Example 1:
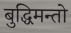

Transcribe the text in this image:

बुद्धिमन्तो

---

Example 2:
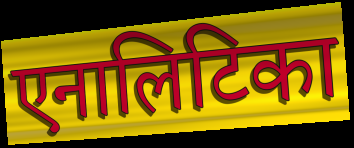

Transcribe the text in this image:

एनालिटिका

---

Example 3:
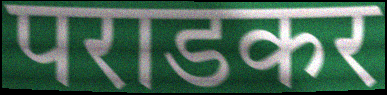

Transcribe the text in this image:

पराडकर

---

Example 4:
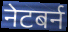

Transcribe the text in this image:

नेटबर्न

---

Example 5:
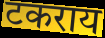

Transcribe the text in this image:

टकराय